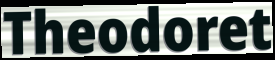
Theodoret